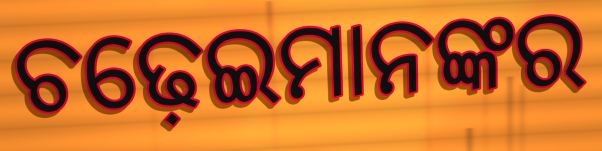
ଚଢ଼େଇମାନଙ୍କର